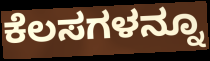
ಕೆಲಸಗಳನ್ನೂ